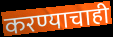
करण्याचाही